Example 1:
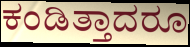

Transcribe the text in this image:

ಕಂಡಿತ್ತಾದರೂ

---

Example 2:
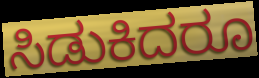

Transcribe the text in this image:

ಸಿಡುಕಿದರೂ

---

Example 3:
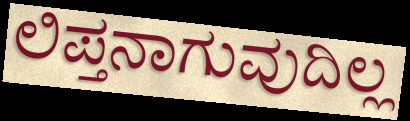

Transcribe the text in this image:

ಲಿಪ್ತನಾಗುವುದಿಲ್ಲ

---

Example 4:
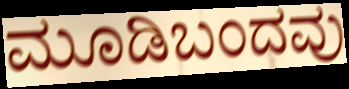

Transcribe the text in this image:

ಮೂಡಿಬಂದವು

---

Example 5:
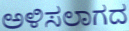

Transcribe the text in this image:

ಅಳಿಸಲಾಗದ